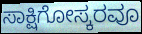
ಸಾಕ್ಷಿಗೋಸ್ಕರವೂ